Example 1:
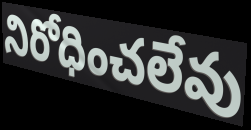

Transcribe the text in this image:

నిరోధించలేవు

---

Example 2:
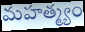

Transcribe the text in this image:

మహత్మ్యం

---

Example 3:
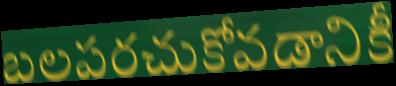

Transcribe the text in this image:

బలపరచుకోవడానికీ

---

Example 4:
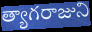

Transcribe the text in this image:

త్యాగరాజుని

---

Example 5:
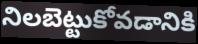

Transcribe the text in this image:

నిలబెట్టుకోవడానికి